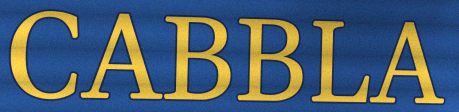
CABBLA